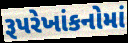
રૂપરેખાંકનોમાં